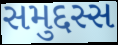
સમુદ્દસ્સ